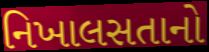
નિખાલસતાનો